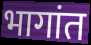
भागांत